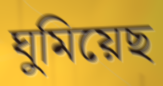
ঘুমিয়েছ